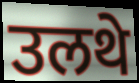
उलथे